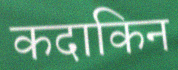
कदाकिन